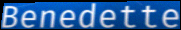
Benedette